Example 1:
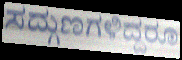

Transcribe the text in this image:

ಸದ್ಗುಣಗಳಿದ್ದರೂ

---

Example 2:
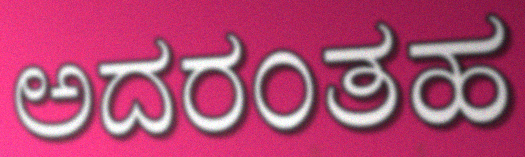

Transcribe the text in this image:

ಅದರಂತಹ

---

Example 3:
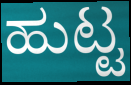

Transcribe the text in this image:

ಹುಟ್ಟ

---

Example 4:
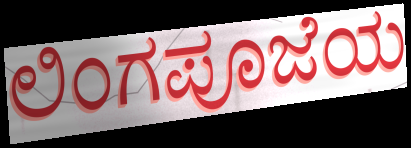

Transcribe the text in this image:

ಲಿಂಗಪೂಜೆಯ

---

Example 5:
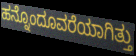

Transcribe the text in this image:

ಹನ್ನೊಂದೂವರೆಯಾಗಿತ್ತು